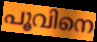
പൂവിനെ